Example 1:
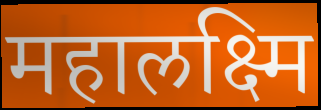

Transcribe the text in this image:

महालक्ष्मि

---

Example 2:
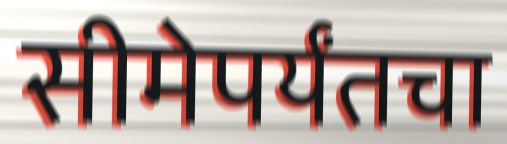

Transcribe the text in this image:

सीमेपर्यंतचा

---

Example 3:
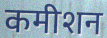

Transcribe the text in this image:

कमीशन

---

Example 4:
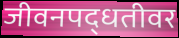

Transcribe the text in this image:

जीवनपद्धतीवर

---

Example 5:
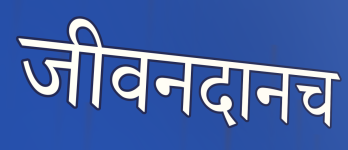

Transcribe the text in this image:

जीवनदानच